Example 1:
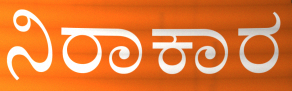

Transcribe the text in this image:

ನಿರಾಕಾರ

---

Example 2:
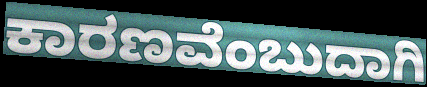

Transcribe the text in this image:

ಕಾರಣವೆಂಬುದಾಗಿ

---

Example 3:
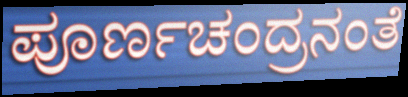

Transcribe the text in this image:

ಪೂರ್ಣಚಂದ್ರನಂತೆ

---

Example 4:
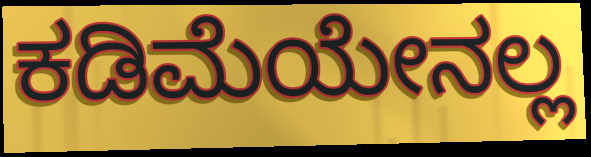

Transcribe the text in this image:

ಕಡಿಮೆಯೇನಲ್ಲ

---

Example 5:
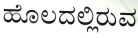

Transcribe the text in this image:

ಹೊಲದಲ್ಲಿರುವ